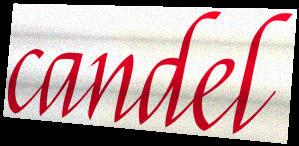
candel